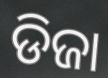
ଡିଜା